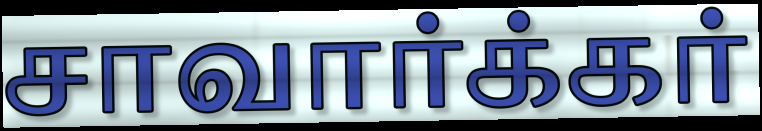
சாவார்க்கர்